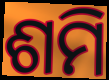
ଶମି